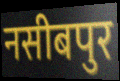
नसीबपुर